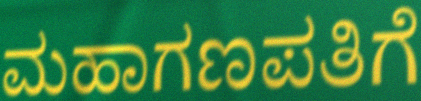
ಮಹಾಗಣಪತಿಗೆ